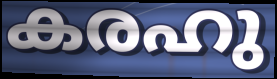
കരഹു